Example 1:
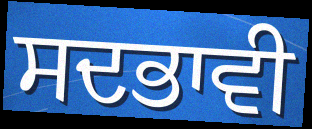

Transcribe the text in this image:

ਸਦਭਾਵੀ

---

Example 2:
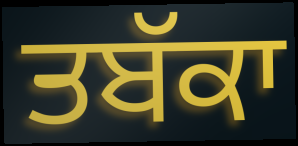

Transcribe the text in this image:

ਤਬੱਕਾ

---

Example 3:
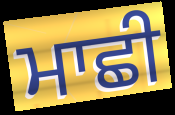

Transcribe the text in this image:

ਮਾਛੀ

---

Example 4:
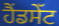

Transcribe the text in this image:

ਹੈਂਡਸੇੱਟ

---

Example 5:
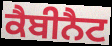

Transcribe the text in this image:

ਕੈਬੀਨੈਟ